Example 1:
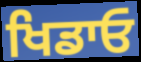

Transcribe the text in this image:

ਖਿਡਾਓ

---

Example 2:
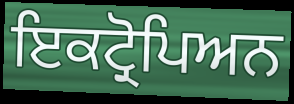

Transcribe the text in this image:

ਇਕਟ੍ਰੋਪਿਅਨ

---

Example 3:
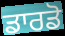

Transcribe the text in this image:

ਡਾਰਡੋ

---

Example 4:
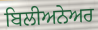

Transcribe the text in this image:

ਬਿਲੀਅਨੇਅਰ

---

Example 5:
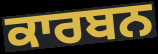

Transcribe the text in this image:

ਕਾਰਬਨ